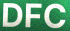
DFC